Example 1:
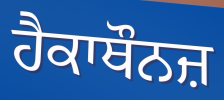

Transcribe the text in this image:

ਹੈਕਾਥੌਨਜ਼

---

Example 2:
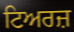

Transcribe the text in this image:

ਟਿਅਰਜ਼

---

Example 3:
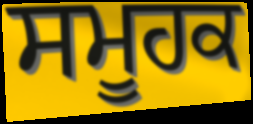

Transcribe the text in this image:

ਸਮੂਹਕ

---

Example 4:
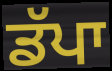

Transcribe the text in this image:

ਡੱਪਾ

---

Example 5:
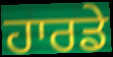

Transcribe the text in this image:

ਹਾਰਡੇ